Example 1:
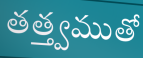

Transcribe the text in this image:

తత్త్వముతో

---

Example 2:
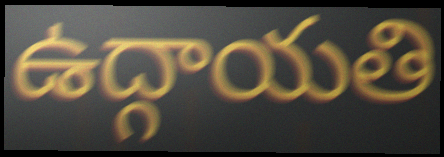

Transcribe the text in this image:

ఉద్గాయతి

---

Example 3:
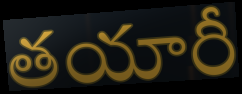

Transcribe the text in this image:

తయారీ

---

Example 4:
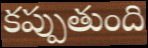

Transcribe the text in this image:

కప్పుతుంది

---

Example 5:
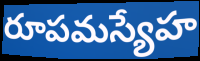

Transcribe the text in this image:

రూపమస్యేహ